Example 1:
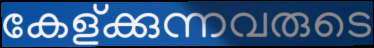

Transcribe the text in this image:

കേള്ക്കുന്നവരുടെ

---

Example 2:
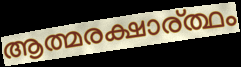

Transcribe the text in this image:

ആത്മരക്ഷാര്ത്ഥം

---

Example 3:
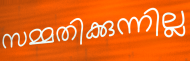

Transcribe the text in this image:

സമ്മതിക്കുന്നില്ല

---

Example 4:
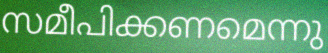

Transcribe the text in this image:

സമീപിക്കണമെന്നു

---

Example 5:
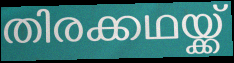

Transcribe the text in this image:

തിരക്കഥയ്ക്ക്